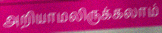
அறியாமலிருக்கலாம்